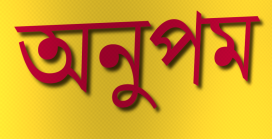
অনুপম